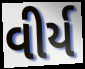
વીર્ય